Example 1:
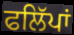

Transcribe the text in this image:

ਫਲਿੱਪਾਂ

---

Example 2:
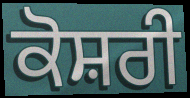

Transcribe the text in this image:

ਕੋਸ਼ਰੀ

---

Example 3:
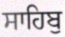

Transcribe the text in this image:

ਸਾਹਿਬੁ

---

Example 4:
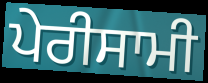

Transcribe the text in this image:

ਪੇਰੀਸਾਮੀ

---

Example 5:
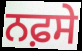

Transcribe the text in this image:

ਨਫ਼ਸੇ